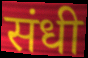
संधी